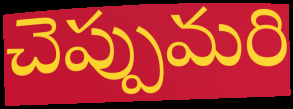
చెప్పుమరి